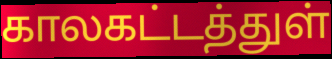
காலகட்டத்துள்